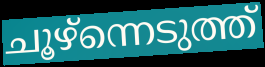
ചൂഴ്ന്നെടുത്ത്